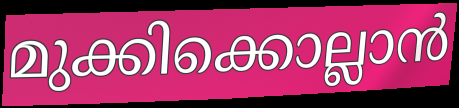
മുക്കിക്കൊല്ലാൻ